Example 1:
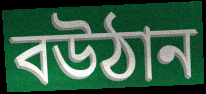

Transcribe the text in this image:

বউঠান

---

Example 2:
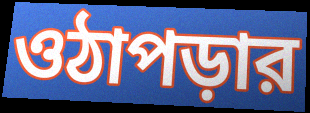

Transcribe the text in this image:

ওঠাপড়ার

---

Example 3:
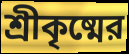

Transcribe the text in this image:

শ্রীকৃষ্মের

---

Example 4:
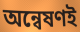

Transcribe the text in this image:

অন্বেষণই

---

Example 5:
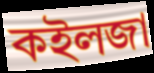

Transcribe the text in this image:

কইলজা